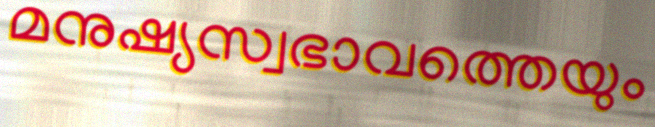
മനുഷ്യസ്വഭാവത്തെയും